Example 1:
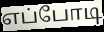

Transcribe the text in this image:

எப்போடி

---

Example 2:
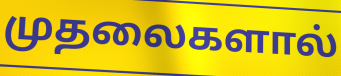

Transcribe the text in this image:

முதலைகளால்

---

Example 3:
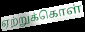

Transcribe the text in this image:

ஏற்றுக்கொள்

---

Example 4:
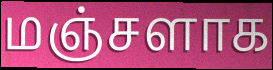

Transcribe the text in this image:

மஞ்சளாக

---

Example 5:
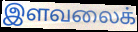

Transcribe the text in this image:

இளவலைக்